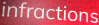
infractions